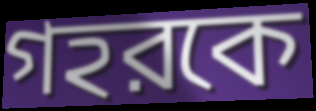
গহরকে